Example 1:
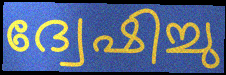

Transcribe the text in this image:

ദ്വേഷിച്ചു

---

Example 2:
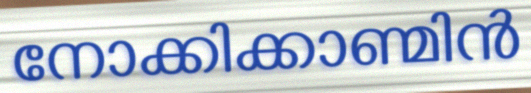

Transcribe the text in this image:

നോക്കിക്കാണ്മിൻ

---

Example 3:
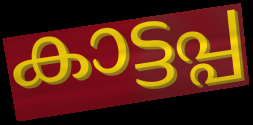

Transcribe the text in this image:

കാട്ടപ്പ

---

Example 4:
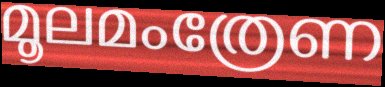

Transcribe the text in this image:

മൂലമംത്രേണ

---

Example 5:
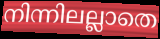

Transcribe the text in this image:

നിന്നിലല്ലാതെ